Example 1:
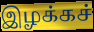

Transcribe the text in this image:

இழக்கச்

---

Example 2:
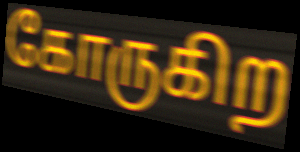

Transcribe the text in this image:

கோருகிற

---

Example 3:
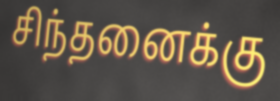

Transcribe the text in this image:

சிந்தனைக்கு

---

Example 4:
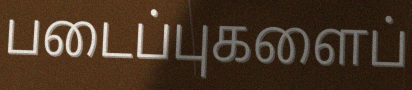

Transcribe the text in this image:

படைப்புகளைப்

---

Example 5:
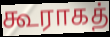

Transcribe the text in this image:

கூராகத்